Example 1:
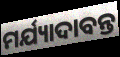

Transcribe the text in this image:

ମର୍ଯ୍ୟାଦାବନ୍ତ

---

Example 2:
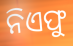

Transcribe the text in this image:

ନିଏଫୁ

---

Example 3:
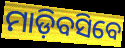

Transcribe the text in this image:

ମାଡ଼ିବସିବେ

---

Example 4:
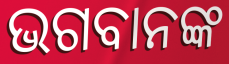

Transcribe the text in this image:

ଭଗବାନଙ୍କ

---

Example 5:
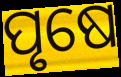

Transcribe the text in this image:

ପୃଷେ